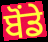
ਬੋਂਡੇ